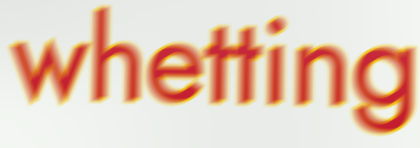
whetting